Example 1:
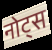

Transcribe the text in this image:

नोट्स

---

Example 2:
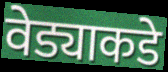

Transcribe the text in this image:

वेड्याकडे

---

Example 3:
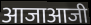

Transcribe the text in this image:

आजाआजी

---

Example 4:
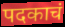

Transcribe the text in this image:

पदकाचं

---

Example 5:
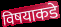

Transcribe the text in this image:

विषयाकडे